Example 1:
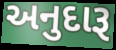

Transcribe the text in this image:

અનુદારૂ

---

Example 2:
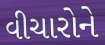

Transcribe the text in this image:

વીચારોને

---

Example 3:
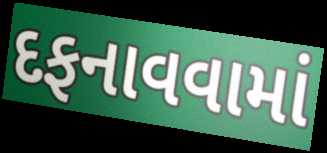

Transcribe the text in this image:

દફનાવવામાં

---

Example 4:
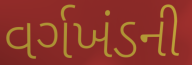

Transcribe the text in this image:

વર્ગખંડની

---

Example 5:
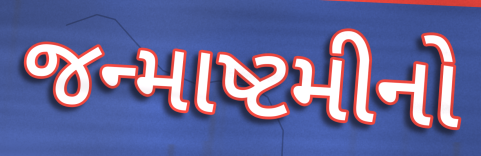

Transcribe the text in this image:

જન્માષ્ટમીનો